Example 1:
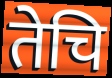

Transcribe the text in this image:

तेचि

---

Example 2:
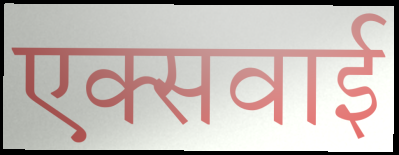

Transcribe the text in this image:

एक्सवाई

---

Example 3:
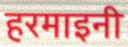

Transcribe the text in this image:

हरमाइनी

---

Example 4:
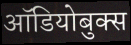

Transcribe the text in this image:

ऑडियोबुक्स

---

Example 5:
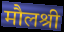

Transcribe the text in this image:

मौलश्री